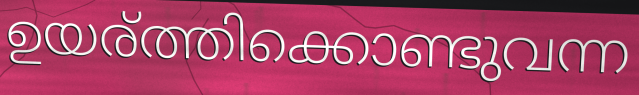
ഉയര്ത്തിക്കൊണ്ടുവന്ന